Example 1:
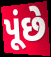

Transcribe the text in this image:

પૂંછે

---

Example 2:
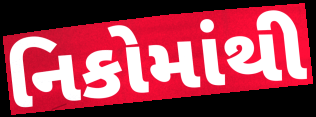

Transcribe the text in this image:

નિકોમાંથી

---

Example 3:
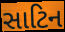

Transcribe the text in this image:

સાટિન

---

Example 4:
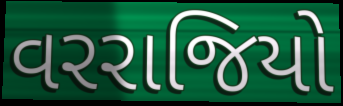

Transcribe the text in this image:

વરરાજિયો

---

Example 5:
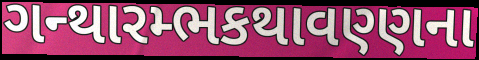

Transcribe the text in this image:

ગન્થારમ્ભકથાવણ્ણના